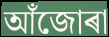
আঁজোৰা